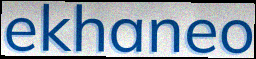
ekhaneo